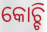
କୋଚ୍ଚି